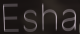
Esha